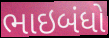
ભાઇબંધો